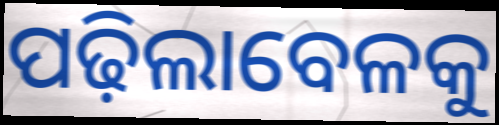
ପଢ଼ିଲାବେଳକୁ